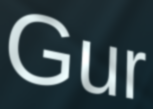
Gur